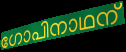
ഗോപിനാഥന്